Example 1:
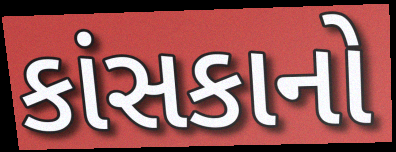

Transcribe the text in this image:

કાંસકાનો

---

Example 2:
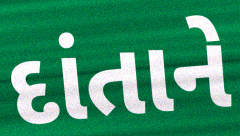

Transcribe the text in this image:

દાંતાને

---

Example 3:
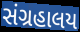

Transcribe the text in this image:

સંગ્રહાલય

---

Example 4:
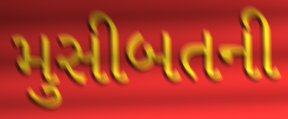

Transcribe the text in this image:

મુસીબતની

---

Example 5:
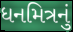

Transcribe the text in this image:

ધનમિત્રનું